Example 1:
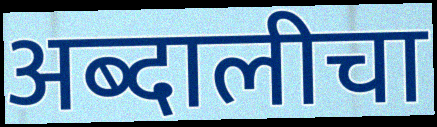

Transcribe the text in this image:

अब्दालीचा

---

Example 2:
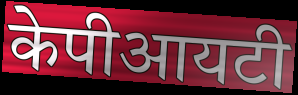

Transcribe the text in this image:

केपीआयटी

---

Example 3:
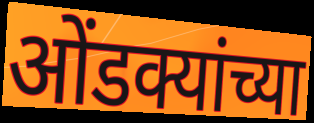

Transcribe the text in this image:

ओंडक्यांच्या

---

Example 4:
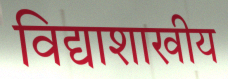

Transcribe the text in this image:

विद्याशाखीय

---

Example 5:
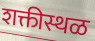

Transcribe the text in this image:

शक्तीस्थळ